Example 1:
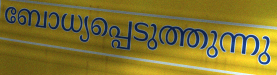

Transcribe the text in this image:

ബോധ്യപ്പെടുത്തുന്നു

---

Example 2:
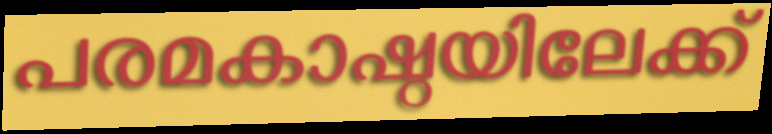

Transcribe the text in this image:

പരമകാഷ്ഠയിലേക്ക്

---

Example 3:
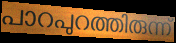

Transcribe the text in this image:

പാറപുറത്തിരുന്ന്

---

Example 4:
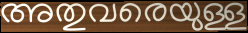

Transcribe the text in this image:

അതുവരെയുള്ള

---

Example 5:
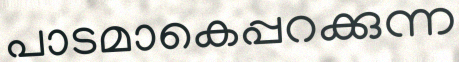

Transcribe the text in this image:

പാടമാകെപ്പറക്കുന്ന